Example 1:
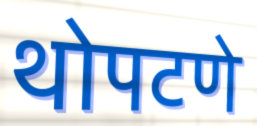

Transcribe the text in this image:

थोपटणे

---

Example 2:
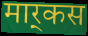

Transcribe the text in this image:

मार्कस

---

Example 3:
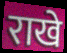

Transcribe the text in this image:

राखे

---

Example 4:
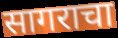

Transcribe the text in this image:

सागराचा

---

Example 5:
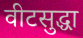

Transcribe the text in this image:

वीटसुद्धा